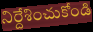
నిర్దేశించుకోండి